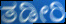
ತಡೀರಿ